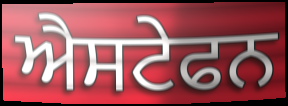
ਐਸਟੇਫਨ